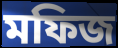
মফিজ